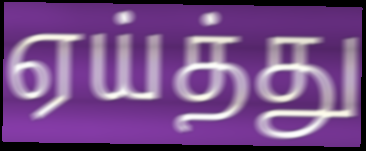
ஏய்த்து